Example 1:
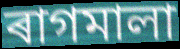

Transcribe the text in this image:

ৰাগমালা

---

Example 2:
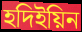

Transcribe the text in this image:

হদিইয়িন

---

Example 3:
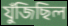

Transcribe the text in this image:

যুঁজিছিল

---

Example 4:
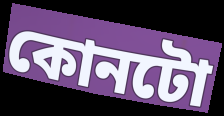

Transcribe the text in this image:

কোনটো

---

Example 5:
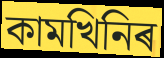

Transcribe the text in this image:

কামখিনিৰ